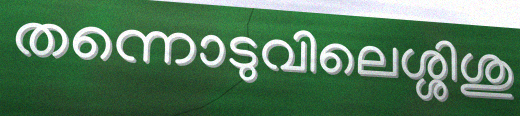
തന്നൊടുവിലെശ്ശിശു